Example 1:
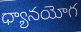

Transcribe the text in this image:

ధ్యానయోగ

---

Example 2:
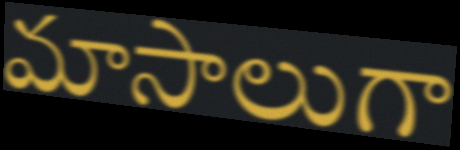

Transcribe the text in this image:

మాసాలుగా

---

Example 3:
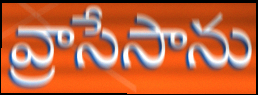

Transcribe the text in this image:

వ్రాసేసాను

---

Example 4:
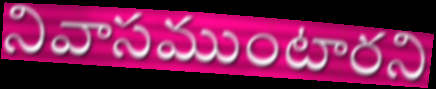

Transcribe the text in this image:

నివాసముంటారని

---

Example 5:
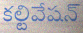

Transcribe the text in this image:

కల్టివేషన్